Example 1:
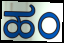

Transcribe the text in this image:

ಹಂ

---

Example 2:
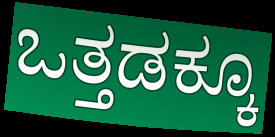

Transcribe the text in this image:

ಒತ್ತಡಕ್ಕೂ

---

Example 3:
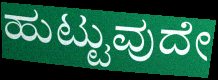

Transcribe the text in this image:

ಹುಟ್ಟುವುದೇ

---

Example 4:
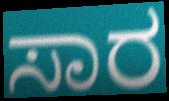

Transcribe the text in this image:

ಸಾರ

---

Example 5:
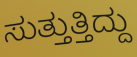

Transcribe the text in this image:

ಸುತ್ತುತ್ತಿದ್ದು